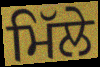
ਮਿੱਲੇ